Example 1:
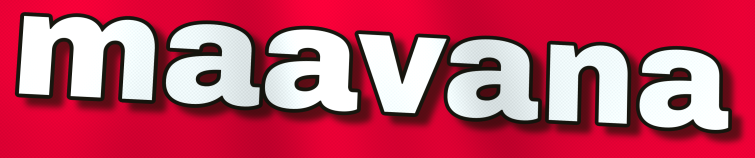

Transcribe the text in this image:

maavana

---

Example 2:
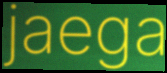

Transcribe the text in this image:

jaega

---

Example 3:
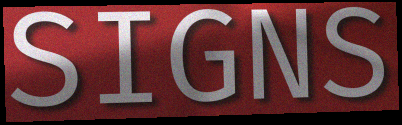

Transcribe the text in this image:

SIGNS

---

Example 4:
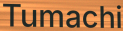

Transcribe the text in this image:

Tumachi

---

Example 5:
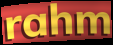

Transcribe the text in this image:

rahm